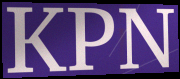
KPN